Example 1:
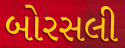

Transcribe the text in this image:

બોરસલી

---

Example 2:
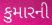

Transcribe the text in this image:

કુમારની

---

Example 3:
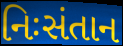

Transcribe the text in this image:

નિઃસંતાન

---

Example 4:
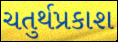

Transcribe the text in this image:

ચતુર્થપ્રકાશ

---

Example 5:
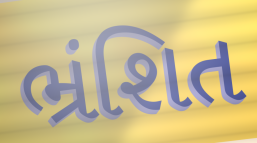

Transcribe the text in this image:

ભ્રંશિત